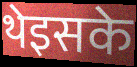
थेइसके